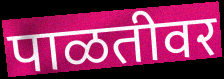
पाळतीवर